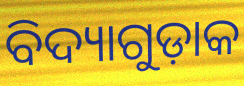
ବିଦ୍ୟାଗୁଡ଼ାକ